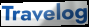
Travelog